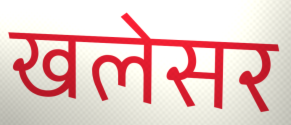
खलेसर